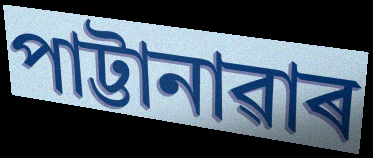
পাট্টানাৱাৰ